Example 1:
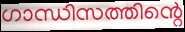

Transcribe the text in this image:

ഗാന്ധിസത്തിന്റെ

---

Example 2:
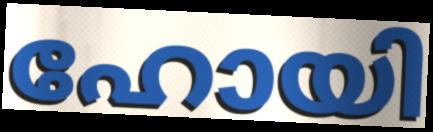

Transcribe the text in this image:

ഹോയി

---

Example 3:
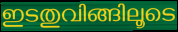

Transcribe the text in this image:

ഇടതുവിങ്ങിലൂടെ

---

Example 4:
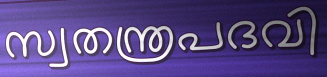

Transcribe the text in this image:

സ്വതന്ത്രപദവി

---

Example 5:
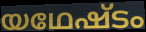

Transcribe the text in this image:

യഥേഷ്ടം